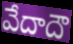
వేదాదౌ